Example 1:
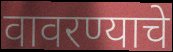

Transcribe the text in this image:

वावरण्याचे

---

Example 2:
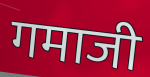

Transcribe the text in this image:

गमाजी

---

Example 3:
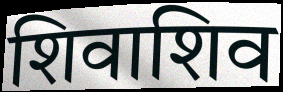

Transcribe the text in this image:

शिवाशिव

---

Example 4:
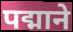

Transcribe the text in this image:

पद्माने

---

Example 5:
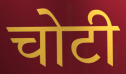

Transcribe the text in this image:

चोटी